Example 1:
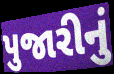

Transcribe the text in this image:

પુજારીનું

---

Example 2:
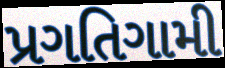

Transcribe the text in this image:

પ્રગતિગામી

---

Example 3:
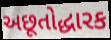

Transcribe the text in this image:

અછૂતોદ્ધારક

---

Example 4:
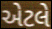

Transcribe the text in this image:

એેટલે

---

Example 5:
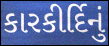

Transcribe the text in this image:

કારકીર્દિનું